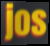
jos